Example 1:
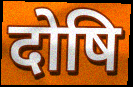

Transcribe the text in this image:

दोषि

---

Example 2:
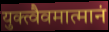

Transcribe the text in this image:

युक्त्वैवमात्मानं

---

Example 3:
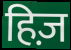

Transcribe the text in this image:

हिज़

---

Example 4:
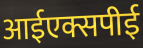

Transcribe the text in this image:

आईएक्सपीई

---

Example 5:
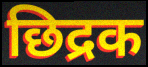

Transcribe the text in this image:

छिद्रक